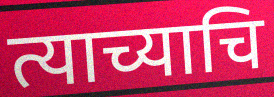
त्याच्याचि